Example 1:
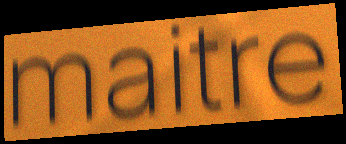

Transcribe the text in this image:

maitre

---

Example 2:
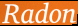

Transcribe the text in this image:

Radon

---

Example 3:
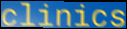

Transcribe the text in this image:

clinics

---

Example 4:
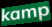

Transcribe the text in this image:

kamp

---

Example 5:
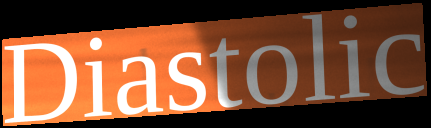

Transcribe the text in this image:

Diastolic